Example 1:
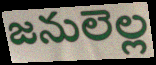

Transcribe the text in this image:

జనులెల్ల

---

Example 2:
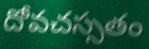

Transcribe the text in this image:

దోవచస్సతం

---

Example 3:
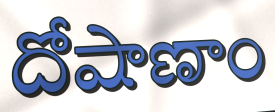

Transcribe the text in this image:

దోషాణాం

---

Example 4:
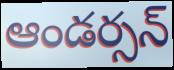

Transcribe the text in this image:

ఆండర్సన్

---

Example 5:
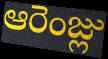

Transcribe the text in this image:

ఆరెంజ్లు